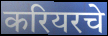
करियरचे